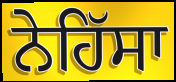
ਨੇਹਿੱਸਾ